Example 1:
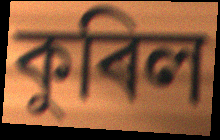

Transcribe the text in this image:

কুৰিল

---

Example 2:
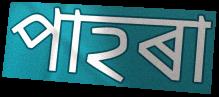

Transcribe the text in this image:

পাহৰা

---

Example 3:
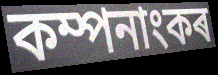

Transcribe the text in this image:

কম্পনাংকৰ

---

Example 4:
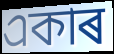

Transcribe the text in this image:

একাৰ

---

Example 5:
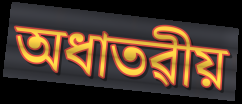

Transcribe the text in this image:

অধাতৱীয়